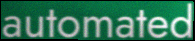
automated